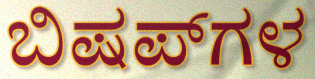
ಬಿಷಪ್‌ಗಳ